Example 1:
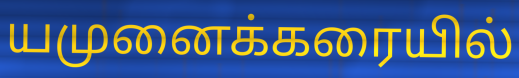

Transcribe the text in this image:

யமுனைக்கரையில்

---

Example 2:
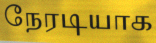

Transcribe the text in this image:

நேரடியாக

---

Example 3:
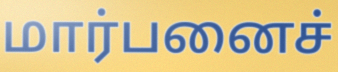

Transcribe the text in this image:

மார்பனைச்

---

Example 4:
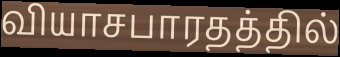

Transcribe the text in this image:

வியாசபாரதத்தில்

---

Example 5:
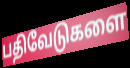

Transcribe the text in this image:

பதிவேடுகளை